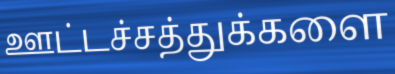
ஊட்டச்சத்துக்களை